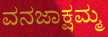
ವನಜಾಕ್ಷಮ್ಮ